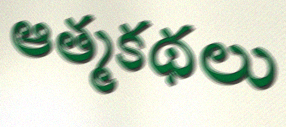
ఆత్మకథలు